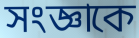
সংজ্ঞাকে